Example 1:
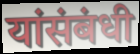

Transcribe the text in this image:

यांसंबंधी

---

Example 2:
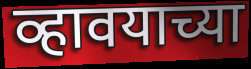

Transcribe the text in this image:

व्हावयाच्या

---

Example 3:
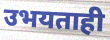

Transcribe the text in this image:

उभयताही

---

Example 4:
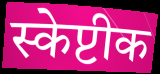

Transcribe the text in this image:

स्केप्टीक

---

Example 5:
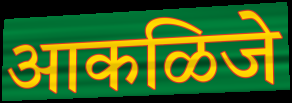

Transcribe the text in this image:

आकळिजे